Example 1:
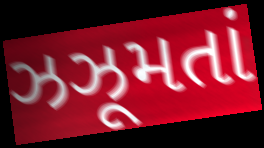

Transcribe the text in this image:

ઝઝૂમતાં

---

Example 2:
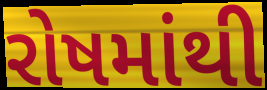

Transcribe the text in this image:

રોષમાંથી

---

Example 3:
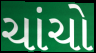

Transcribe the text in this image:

ચાંચો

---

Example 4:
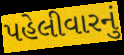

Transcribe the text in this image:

પહેલીવારનું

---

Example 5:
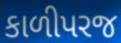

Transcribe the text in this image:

કાળીપરજ